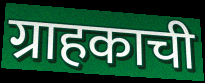
ग्राहकाची